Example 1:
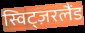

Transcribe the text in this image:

स्विट्ज़रलैंड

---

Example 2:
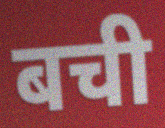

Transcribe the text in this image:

बची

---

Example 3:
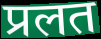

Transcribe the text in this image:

प्रलत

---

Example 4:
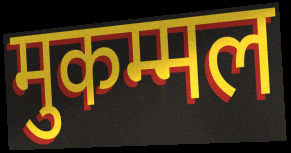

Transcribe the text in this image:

मुकम्मल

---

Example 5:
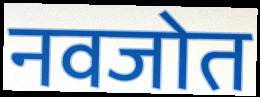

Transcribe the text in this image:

नवजोत